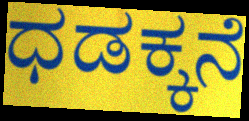
ಧಡಕ್ಕನೆ